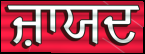
ਜ਼ਾਯਦ